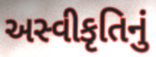
અસ્વીકૃતિનું